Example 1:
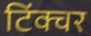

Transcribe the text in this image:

टिंक्चर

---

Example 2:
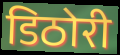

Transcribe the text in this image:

डिठोरी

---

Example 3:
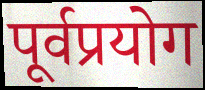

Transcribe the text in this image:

पूर्वप्रयोग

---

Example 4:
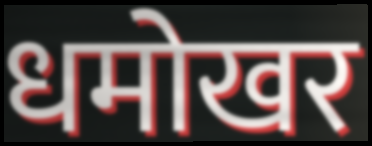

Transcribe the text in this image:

धमोखर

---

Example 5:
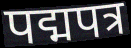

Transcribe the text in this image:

पद्मपत्र